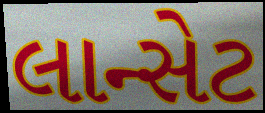
લાન્સેટ